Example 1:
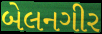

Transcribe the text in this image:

બેલનગીર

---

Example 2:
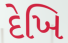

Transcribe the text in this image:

દેખિ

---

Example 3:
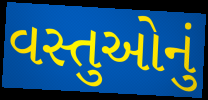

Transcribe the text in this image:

વસ્તુઓનું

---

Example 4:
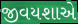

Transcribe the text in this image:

જીવયશાએ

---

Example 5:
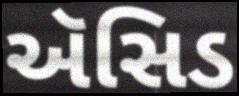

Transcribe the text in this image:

ઍસિડ